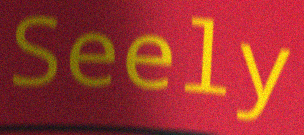
Seely